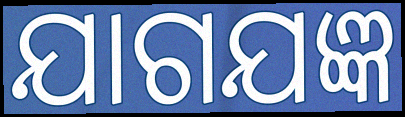
ଯାଗଯଜ୍ଞ